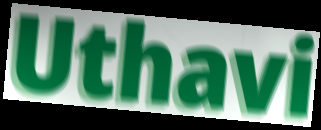
Uthavi